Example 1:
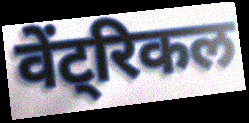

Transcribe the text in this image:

वेंट्रिकल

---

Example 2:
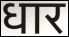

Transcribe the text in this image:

धार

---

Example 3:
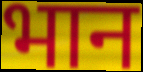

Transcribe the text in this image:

भान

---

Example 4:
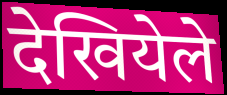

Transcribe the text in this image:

देखियेले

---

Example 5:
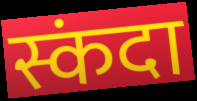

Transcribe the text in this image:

स्कंदा